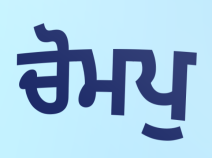
ਚੋਮਪੁ